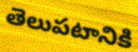
తెలుపటానికి